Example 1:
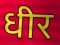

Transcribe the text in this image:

धीर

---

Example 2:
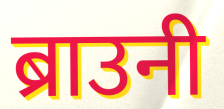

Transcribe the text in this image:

ब्राउनी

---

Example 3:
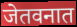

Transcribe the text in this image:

जेतवनात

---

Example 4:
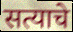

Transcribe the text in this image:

सत्याचे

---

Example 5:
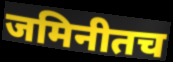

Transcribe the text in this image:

जमिनीतच